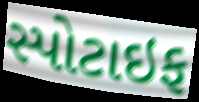
સ્પોટાઇફ